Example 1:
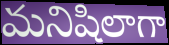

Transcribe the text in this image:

మనిషిలాగా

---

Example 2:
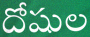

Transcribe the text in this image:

దోషుల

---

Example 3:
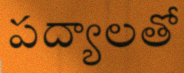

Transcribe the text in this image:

పద్యాలతో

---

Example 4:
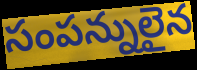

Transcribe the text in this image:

సంపన్నులైన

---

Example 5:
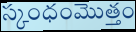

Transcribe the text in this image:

స్కంధంమొత్తం